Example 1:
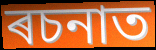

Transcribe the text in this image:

ৰচনাত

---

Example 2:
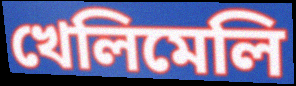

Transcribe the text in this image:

খেলিমেলি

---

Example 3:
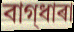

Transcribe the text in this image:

বাগ্‌ধাৰা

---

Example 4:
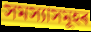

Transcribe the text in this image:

সমস্যাসমূহৰ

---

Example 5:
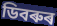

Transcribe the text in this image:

ডিবৰুৰ